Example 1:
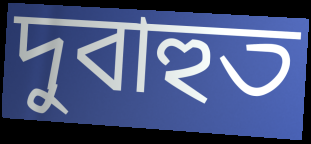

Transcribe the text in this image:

দুবাহুত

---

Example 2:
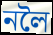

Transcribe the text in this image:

নলৈ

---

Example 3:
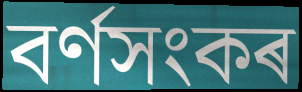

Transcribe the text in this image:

বৰ্ণসংকৰ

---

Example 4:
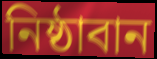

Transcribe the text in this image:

নিষ্ঠাবান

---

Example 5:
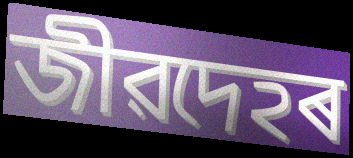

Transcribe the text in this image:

জীৱদেহৰ